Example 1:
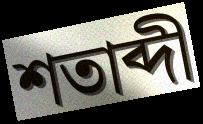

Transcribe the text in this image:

শতাব্দী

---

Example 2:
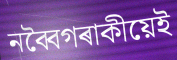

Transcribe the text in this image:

নব্বৈগৰাকীয়েই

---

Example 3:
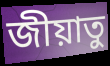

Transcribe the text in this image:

জীয়াতু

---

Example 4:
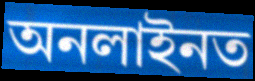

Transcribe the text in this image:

অনলাইনত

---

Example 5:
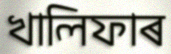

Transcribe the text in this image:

খালিফাৰ